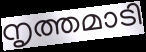
നൃത്തമാടി